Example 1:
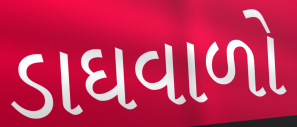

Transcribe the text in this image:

ડાઘવાળો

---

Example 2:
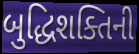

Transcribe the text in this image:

બુદ્ધિશક્તિની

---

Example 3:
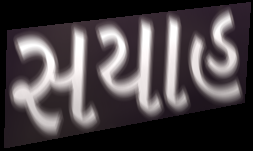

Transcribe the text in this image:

સયાહ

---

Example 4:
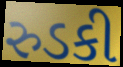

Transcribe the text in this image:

રુડકી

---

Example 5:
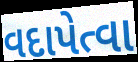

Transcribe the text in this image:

વદાપેત્વા